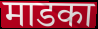
माडका